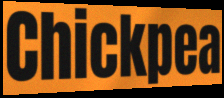
Chickpea